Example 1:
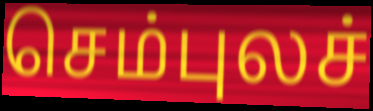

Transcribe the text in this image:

செம்புலச்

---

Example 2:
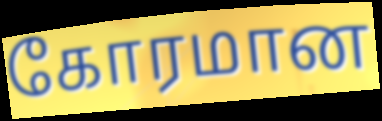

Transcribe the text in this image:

கோரமான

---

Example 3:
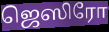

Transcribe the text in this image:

ஜெஸிரோ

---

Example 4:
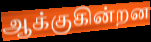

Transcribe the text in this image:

ஆக்குகின்றன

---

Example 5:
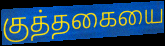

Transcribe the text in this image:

குத்தகையை